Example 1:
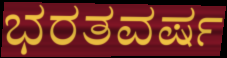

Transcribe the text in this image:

ಭರತವರ್ಷ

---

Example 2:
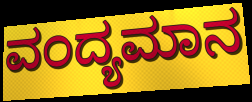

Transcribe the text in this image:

ವಂದ್ಯಮಾನ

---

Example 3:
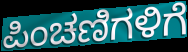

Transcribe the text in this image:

ಪಿಂಚಣಿಗಳಿಗೆ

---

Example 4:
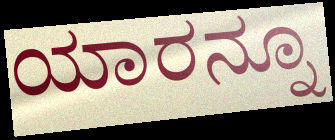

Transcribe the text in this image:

ಯಾರನ್ನೂ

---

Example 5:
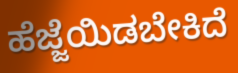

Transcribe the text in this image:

ಹೆಜ್ಜೆಯಿಡಬೇಕಿದೆ